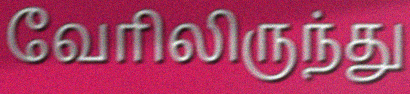
வேரிலிருந்து